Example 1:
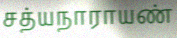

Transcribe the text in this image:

சத்யநாராயண்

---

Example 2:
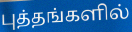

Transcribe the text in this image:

புத்தங்களில்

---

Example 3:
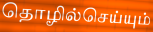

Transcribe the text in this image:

தொழில்செய்யும்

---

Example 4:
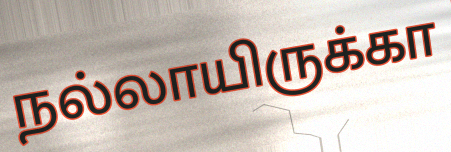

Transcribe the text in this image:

நல்லாயிருக்கா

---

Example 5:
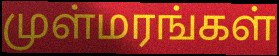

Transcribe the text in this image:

முள்மரங்கள்